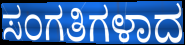
ಸಂಗತಿಗಳಾದ